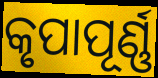
କୃପାପୂର୍ଣ୍ଣ